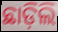
ଛାଡ଼ିଲି